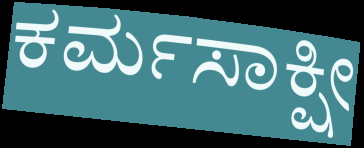
ಕರ್ಮಸಾಕ್ಷೀ